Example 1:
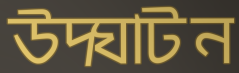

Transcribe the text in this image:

উদ্ঘাটন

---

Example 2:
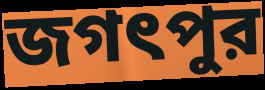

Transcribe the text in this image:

জগৎপুর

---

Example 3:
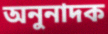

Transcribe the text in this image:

অনুনাদক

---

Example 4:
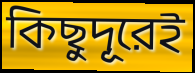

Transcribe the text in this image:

কিছুদূরেই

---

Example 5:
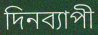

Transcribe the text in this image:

দিনব্যাপী